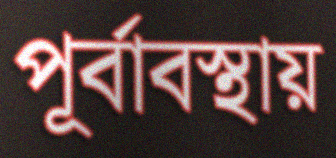
পূর্বাবস্থায়